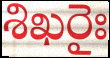
శిఖరైః